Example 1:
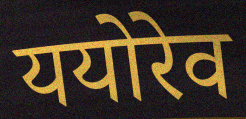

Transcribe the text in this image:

ययोरेव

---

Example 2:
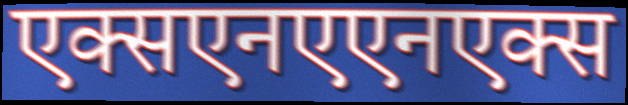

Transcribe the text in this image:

एक्सएनएएनएक्स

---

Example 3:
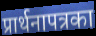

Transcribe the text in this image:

प्रार्थनापत्रका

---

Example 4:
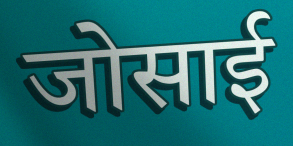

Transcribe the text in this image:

जोसाई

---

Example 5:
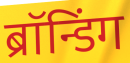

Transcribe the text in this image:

ब्रॉन्डिंग